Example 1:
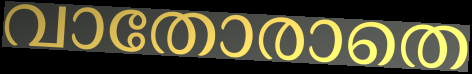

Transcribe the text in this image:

വാതോരാതെ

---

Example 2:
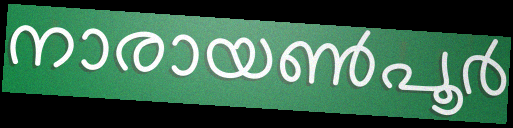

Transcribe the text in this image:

നാരായൺപൂർ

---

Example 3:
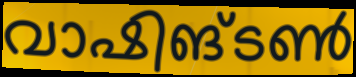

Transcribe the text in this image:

വാഷിങ്ടൺ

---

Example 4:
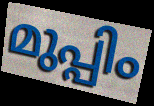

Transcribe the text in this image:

മുപ്പിം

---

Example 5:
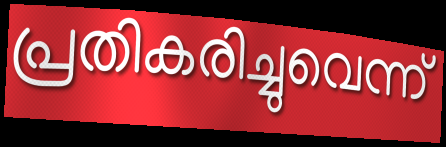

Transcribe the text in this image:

പ്രതികരിച്ചുവെന്ന്